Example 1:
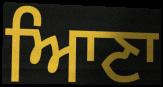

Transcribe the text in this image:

ਆਿਣਾ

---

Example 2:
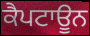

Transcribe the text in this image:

ਕੈਪਟਾਊਨ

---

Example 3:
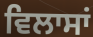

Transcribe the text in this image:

ਵਿਲਾਸਾਂ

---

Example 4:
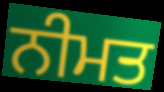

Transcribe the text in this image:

ਨੀਮਤ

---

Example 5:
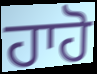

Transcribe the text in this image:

ਹਾਹੋ